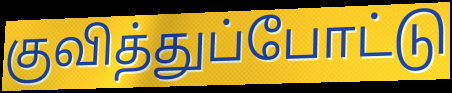
குவித்துப்போட்டு